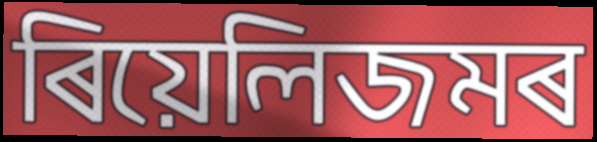
ৰিয়েলিজমৰ